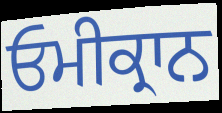
ਓਮੀਕ੍ਰਾਨ